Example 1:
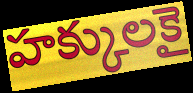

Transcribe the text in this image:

హక్కులకై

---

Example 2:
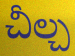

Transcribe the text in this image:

చీల్చ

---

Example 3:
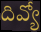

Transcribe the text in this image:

దివ్యో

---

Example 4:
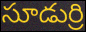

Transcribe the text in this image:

సూడుర్రి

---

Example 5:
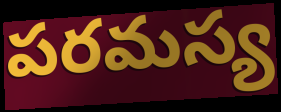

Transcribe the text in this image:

పరమస్య